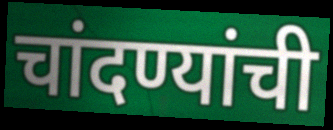
चांदण्यांची